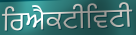
ਰਿਐਕਟੀਵਿਟੀ